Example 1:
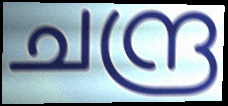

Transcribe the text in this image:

ചന്ദ്ര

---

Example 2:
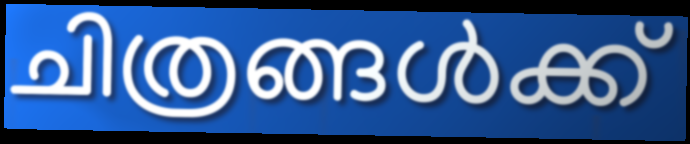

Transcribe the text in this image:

ചിത്രങ്ങൾക്ക്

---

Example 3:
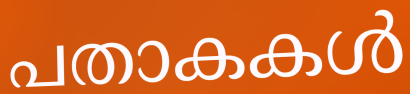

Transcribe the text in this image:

പതാകകൾ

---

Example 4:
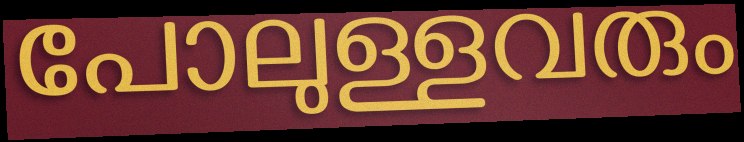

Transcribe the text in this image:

പോലുള്ളവരും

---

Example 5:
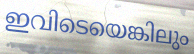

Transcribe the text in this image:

ഇവിടെയെങ്കിലും